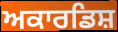
ਅਕਾਰਡਿਸ਼